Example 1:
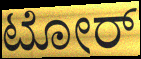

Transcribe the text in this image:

ಟೋರ್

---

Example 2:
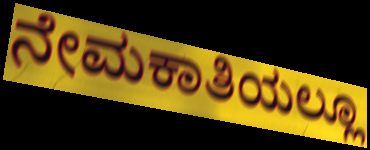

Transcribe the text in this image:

ನೇಮಕಾತಿಯಲ್ಲೂ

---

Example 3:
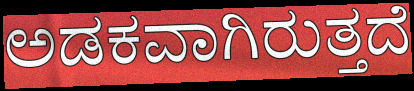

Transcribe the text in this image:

ಅಡಕವಾಗಿರುತ್ತದೆ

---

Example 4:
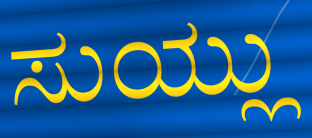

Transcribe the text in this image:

ಸುಯ್ಲು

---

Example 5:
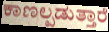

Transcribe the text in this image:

ಕಾಣಲ್ಪಡುತ್ತಾರೆ